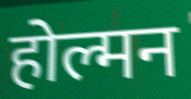
होल्मन